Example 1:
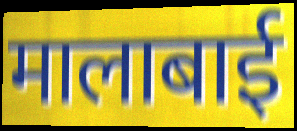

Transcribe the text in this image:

मालाबाई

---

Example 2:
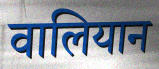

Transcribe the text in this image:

वालियान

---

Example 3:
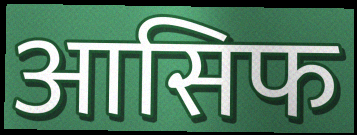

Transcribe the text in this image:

आसिफ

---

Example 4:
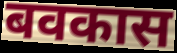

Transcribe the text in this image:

बवकास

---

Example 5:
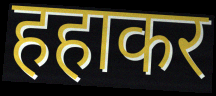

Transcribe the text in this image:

हहाकर